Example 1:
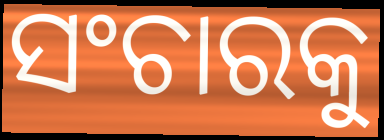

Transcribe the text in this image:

ସଂଚାରକୁ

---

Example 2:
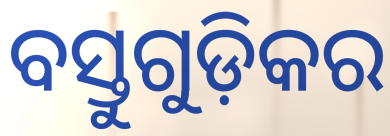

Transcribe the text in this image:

ବସ୍ତୁଗୁଡ଼ିକର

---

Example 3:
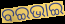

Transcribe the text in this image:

ବଇଭାଇ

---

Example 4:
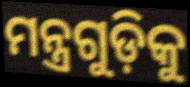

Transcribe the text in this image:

ମନ୍ତ୍ରଗୁଡ଼ିକୁ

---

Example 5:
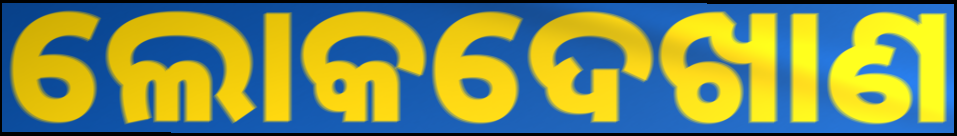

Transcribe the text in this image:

ଲୋକଦେଖାଣ